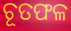
ଚୂତଫଳ